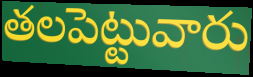
తలపెట్టువారు